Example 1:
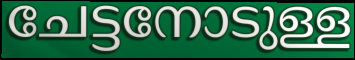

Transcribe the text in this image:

ചേട്ടനോടുള്ള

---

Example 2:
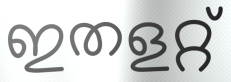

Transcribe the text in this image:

ഇതളറ്റ്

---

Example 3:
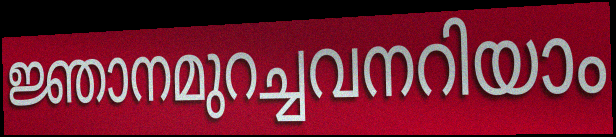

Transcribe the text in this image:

ജ്ഞാനമുറച്ചവനറിയാം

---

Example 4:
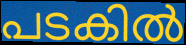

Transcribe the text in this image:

പടകിൽ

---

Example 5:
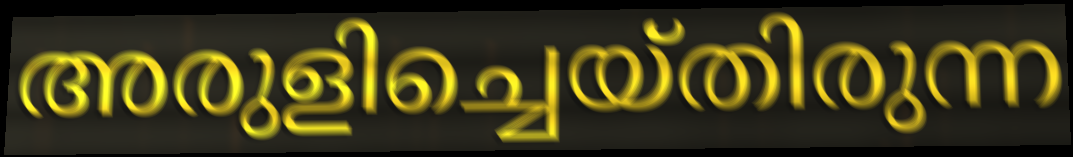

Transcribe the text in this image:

അരുളിച്ചെയ്തിരുന്ന